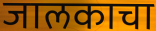
जालकाचा